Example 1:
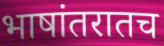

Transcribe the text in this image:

भाषांतरातच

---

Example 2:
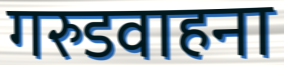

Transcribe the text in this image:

गरुडवाहना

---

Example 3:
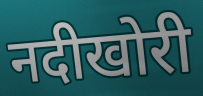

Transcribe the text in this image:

नदीखोरी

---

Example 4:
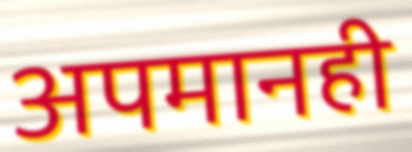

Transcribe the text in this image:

अपमानही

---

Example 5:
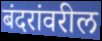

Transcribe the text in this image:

बंदरांवरील